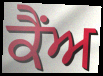
ਕੈਂਅ